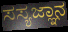
ಸಸ್ಯಜ್ಞಾನ